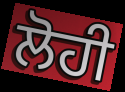
ਲੋਹੀ